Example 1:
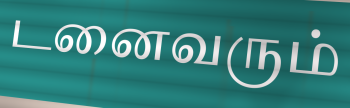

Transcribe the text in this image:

டனைவரும்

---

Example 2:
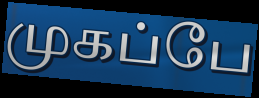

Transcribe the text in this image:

முகப்பே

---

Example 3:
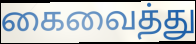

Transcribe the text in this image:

கைவைத்து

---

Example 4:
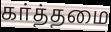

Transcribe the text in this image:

கர்த்தமை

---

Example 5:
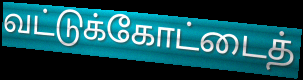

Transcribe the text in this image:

வட்டுக்கோட்டைத்